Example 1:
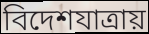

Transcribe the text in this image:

বিদেশযাত্রায়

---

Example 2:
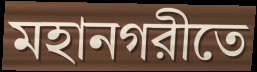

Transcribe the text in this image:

মহানগরীতে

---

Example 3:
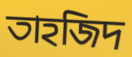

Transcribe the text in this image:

তাহজিদ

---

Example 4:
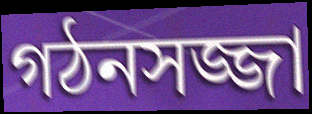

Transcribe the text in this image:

গঠনসজ্জা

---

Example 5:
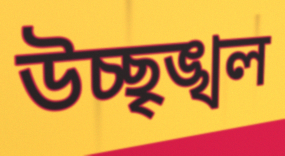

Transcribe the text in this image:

উচ্ছৃঙ্খল